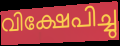
വിക്ഷേപിച്ചു